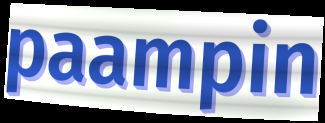
paampin